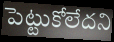
పెట్టుకోలేదని